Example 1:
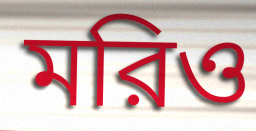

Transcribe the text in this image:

মরিও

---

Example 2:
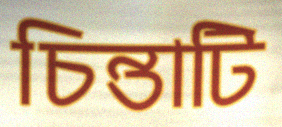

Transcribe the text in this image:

চিন্তাটি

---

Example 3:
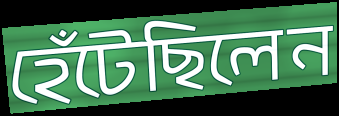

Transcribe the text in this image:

হেঁটেছিলেন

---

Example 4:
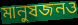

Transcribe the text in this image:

মানুষজনও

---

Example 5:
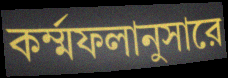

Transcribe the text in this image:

কর্ম্মফলানুসারে